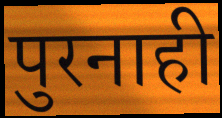
पुरनाही